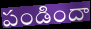
పండిందా